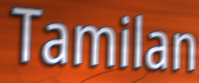
Tamilan